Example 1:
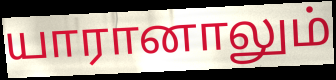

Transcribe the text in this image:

யாரானாலும்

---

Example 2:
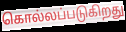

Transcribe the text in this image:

கொல்லப்படுகிறது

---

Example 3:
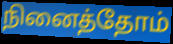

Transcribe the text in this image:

நினைத்தோம்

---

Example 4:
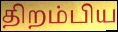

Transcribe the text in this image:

திறம்பிய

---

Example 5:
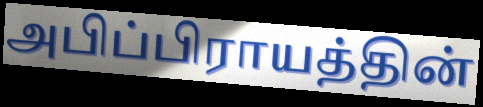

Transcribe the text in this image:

அபிப்பிராயத்தின்